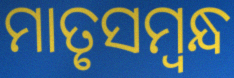
ମାତୃସମ୍ବନ୍ଧ